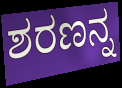
ಶರಣನ್ನ